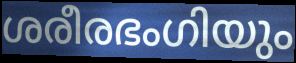
ശരീരഭംഗിയും